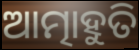
ଆତ୍ମାହୁତି